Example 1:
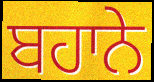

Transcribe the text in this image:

ਬਹਾਨੇ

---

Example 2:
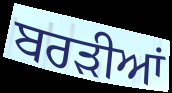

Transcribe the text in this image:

ਬਰੜੀਆਂ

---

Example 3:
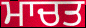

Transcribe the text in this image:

ਮਾਚਤ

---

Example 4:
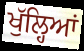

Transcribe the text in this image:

ਖੁੱਲ੍ਹਿਆਂ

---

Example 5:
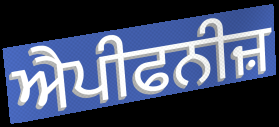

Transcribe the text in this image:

ਐਪੀਫਨੀਜ਼